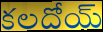
కలదోయ్